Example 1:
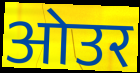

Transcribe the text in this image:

ओउर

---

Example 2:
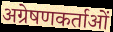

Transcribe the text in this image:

अग्रेषणकर्ताओं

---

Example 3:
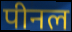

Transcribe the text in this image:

पीनल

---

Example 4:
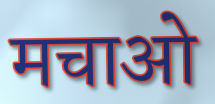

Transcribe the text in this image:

मचाओ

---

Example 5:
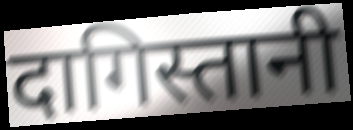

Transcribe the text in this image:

दागिस्तानी